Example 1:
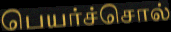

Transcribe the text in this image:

பெயர்ச்சொல்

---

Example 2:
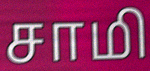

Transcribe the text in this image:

சாமி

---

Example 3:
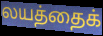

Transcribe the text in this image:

லயத்தைக்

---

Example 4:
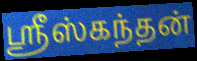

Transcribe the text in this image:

ஸ்ரீஸ்கந்தன்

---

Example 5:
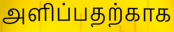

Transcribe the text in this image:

அளிப்பதற்காக